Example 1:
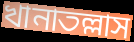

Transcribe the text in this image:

খানাতল্লাস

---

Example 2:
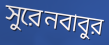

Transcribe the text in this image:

সুরেনবাবুর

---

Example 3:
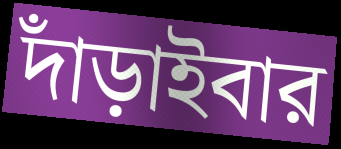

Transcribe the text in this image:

দাঁড়াইবার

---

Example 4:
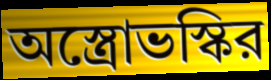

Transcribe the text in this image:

অস্ত্রোভস্কির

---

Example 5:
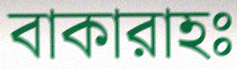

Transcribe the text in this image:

বাকারাহঃ